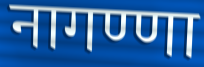
नागण्णा